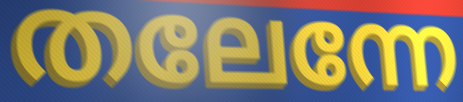
തലേന്നേ